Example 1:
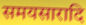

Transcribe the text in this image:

समयसारादि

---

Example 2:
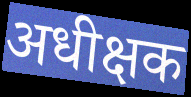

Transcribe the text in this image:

अधीक्षक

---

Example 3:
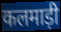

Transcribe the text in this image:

कलमाड़ी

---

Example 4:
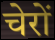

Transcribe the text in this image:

चेरों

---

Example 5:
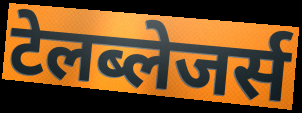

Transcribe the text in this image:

टेलब्लेजर्स